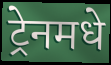
ट्रेनमधे